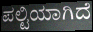
ಪಲ್ಟಿಯಾಗಿದೆ